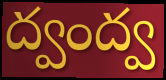
ద్వంద్వ